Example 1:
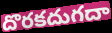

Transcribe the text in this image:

దొరకదుగదా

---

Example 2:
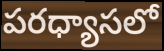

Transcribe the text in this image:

పరధ్యాసలో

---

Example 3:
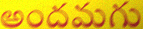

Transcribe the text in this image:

అందమగు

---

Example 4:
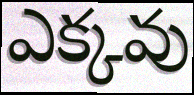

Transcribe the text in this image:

ఎక్కవు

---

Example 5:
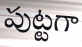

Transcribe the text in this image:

పుట్టగా